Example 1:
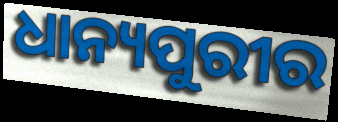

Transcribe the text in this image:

ଧାନ୍ୟପୁରୀର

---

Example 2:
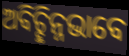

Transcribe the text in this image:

ଅବିଚ୍ଛିନ୍ନଭାବେ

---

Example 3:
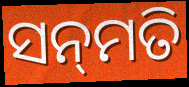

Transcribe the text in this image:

ସନ୍‌ମତି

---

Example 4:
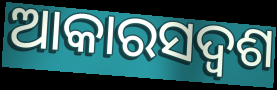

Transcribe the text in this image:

ଆକାରସଦ୍ୱଶ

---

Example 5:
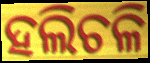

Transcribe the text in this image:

ହଲିଚଳି